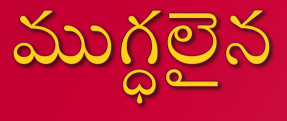
ముగ్ధలైన